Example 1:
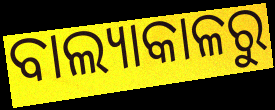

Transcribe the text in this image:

ବାଲ୍ୟାକାଳରୁ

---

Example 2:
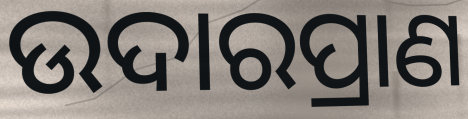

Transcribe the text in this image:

ଉଦାରପ୍ରାଣ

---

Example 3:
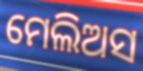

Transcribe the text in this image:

ମେଲିଅସ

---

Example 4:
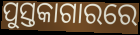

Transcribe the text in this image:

ପୁସ୍ତକାଗାରରେ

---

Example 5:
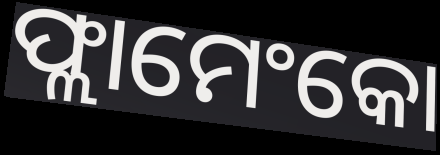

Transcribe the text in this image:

ଫ୍ଲାମେଂକୋ